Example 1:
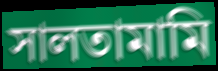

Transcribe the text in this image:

সালতামামি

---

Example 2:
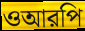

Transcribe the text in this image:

ওআরপি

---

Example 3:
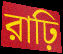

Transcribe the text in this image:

রাঢ়ি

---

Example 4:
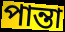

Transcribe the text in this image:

পান্তা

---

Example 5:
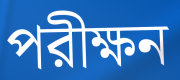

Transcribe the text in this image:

পরীক্ষন